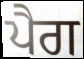
ਪੈਗ